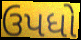
ઉપધો